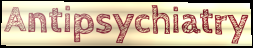
Antipsychiatry